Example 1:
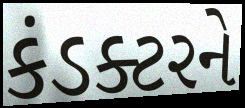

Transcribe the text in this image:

કંડક્ટરને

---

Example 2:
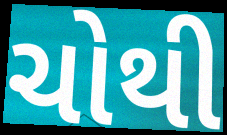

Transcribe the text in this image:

ચોથી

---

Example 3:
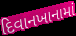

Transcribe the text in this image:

દિવાનખાનામાં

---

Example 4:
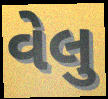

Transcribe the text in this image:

વેલુ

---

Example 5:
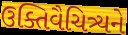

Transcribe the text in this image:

ઉક્તિવૈચિત્ર્યને